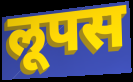
लूपस